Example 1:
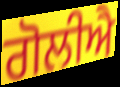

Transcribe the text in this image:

ਗੋਲੀਐ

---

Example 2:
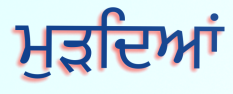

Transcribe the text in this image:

ਮੁੜਦਿਆਂ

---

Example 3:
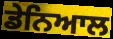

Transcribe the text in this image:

ਡੇਨਿਆਲ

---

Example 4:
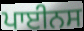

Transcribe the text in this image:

ਪਾਈਨਸ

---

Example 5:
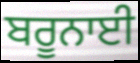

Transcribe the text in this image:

ਬਰੂਨਾਈ